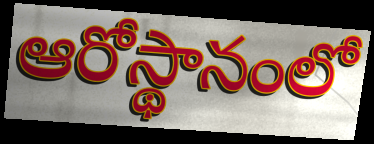
ఆరోస్థానంలో